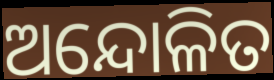
ଅନ୍ଦୋଳିତ